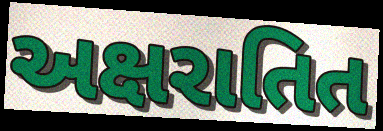
અક્ષરાતિત